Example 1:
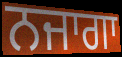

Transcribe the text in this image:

ਨਜਾਗਾ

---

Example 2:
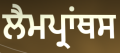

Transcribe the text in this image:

ਲੈਮਪ੍ਰਾਂਥਸ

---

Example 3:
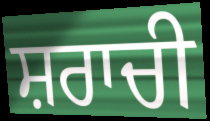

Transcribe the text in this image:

ਸ਼ਰਾਚੀ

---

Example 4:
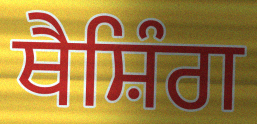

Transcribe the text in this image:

ਥੈਸ਼ਿੰਗ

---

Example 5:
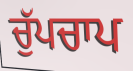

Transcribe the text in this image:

ਚੁੱਪਚਾਪ